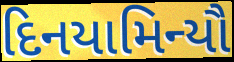
દિનયામિન્યૌ